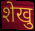
शेखु